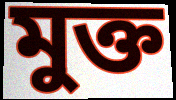
মুক্ত